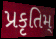
પ્રકૃતિમ્